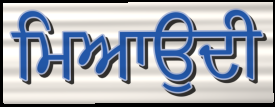
ਮਿਆਉਦੀ